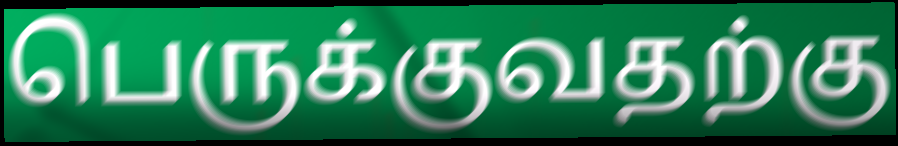
பெருக்குவதற்கு